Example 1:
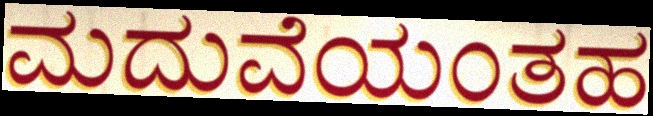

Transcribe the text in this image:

ಮದುವೆಯಂತಹ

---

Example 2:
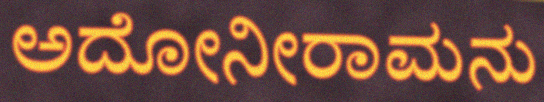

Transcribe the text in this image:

ಅದೋನೀರಾಮನು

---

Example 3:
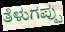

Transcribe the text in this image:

ತೆಳುಗಪ್ಪು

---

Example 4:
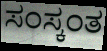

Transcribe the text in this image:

ಸಂಸ್ಕಂತ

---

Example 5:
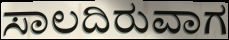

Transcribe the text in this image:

ಸಾಲದಿರುವಾಗ